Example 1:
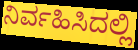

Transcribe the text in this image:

ನಿರ್ವಹಿಸಿದಲ್ಲಿ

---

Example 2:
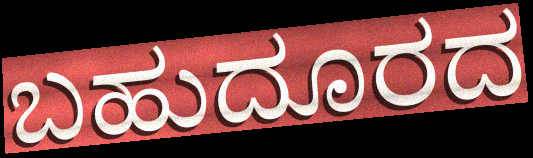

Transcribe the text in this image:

ಬಹುದೂರದ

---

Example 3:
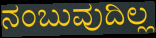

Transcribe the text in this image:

ನಂಬುವುದಿಲ್ಲ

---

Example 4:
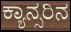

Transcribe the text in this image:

ಕ್ಯಾನ್ಸರಿನ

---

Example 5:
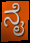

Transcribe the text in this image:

ನೈ